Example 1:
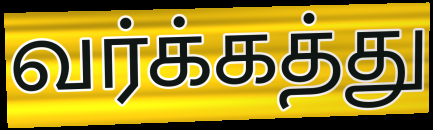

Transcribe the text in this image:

வர்க்கத்து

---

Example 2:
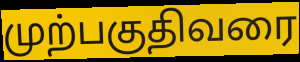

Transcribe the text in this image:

முற்பகுதிவரை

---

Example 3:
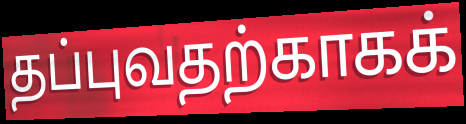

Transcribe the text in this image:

தப்புவதற்காகக்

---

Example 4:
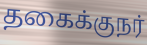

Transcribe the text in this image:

தகைக்குநர்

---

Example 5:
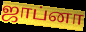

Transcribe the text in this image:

ஜாப்னா